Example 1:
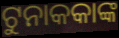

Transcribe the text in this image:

ଟୁନାକକାଙ୍କ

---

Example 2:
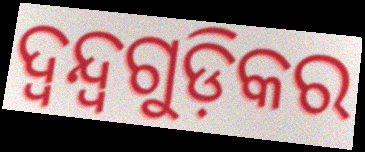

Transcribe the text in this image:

ଦ୍ୱନ୍ଦ୍ୱଗୁଡ଼ିକର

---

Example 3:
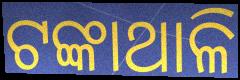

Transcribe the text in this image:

ଟଙ୍କାଥାଳି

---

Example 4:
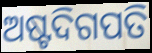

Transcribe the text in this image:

ଅଷ୍ଟଦିଗପତି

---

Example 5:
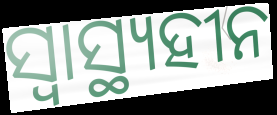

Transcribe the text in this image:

ସ୍ୱାସ୍ଥ୍ୟହୀନ